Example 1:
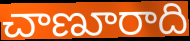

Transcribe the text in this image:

చాణూరాది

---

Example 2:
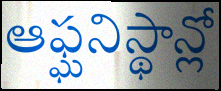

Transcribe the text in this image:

ఆఫ్ఘనిస్థాన్లో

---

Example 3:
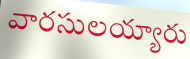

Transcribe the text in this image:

వారసులయ్యారు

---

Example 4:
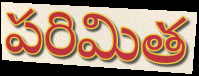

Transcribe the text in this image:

పరిమిత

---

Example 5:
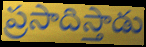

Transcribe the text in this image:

ప్రసాదిస్తాడు